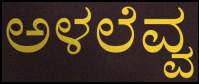
ಅಳಲೆವ್ವ